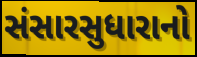
સંસારસુધારાનો